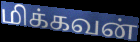
மிக்கவன்